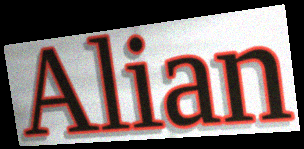
Alian